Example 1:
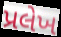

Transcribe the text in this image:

પ્રલેખ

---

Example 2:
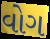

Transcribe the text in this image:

વોગ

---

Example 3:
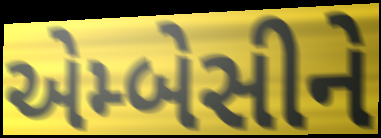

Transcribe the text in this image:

એમ્બેસીને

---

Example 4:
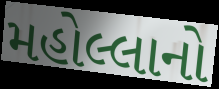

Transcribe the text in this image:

મહોલ્લાનો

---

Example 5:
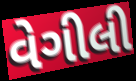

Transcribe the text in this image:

વેગીલી